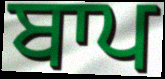
ਬਾਪ